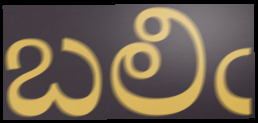
బలిఁ